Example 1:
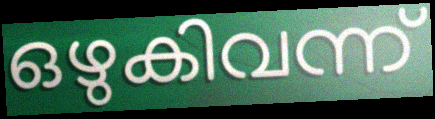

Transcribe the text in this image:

ഒഴുകിവന്ന്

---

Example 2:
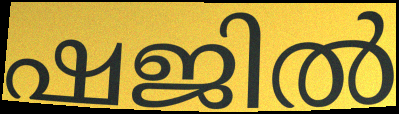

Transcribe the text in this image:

ഷജിൽ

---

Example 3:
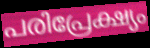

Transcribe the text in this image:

പരിപ്രേക്ഷ്യം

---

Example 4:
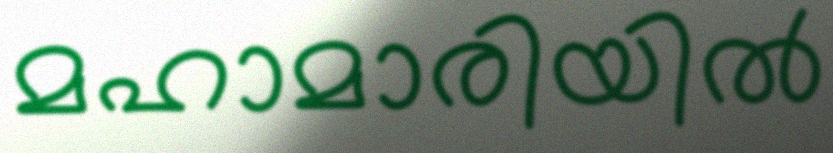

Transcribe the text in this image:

മഹാമാരിയിൽ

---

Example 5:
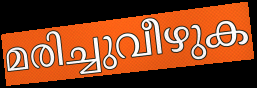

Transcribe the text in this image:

മരിച്ചുവീഴുക